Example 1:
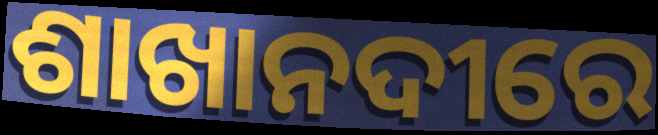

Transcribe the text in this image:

ଶାଖାନଦୀରେ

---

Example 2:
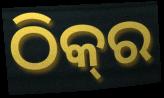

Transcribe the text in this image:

ଠିକ୍‍ର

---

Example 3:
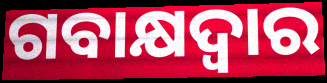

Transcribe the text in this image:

ଗବାକ୍ଷଦ୍ୱାର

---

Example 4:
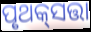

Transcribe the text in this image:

ପୃଥକ୍‌ସତ୍ତା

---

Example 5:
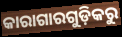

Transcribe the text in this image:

କାରାଗାରଗୁଡ଼ିକରୁ